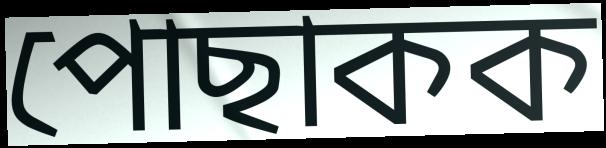
পোছাকক